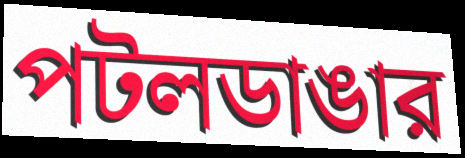
পটলডাঙার